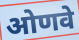
ओणवे